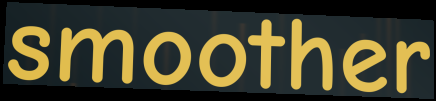
smoother